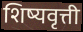
शिष्यवृत्ती